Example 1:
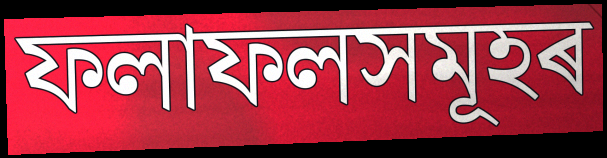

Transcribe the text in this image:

ফলাফলসমূহৰ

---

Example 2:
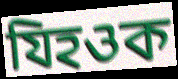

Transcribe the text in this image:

যিহওক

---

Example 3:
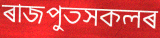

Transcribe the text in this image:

ৰাজপুতসকলৰ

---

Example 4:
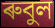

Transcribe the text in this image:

ৰুবুল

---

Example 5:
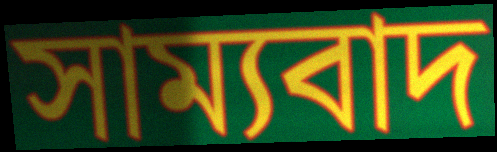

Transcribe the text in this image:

সাম্যবাদ